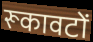
रूकावटों